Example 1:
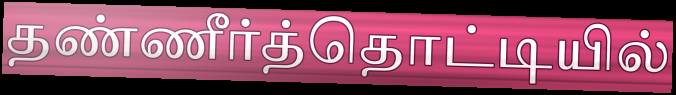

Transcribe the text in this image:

தண்ணீர்த்தொட்டியில்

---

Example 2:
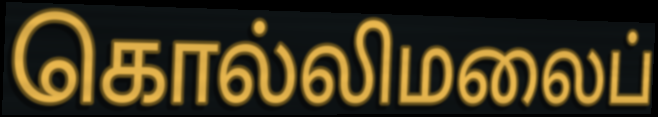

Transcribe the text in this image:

கொல்லிமலைப்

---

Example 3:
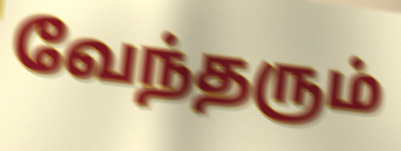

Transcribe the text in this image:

வேந்தரும்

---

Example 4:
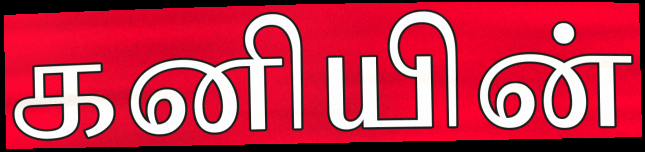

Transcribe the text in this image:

கனியின்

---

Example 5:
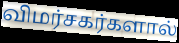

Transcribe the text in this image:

விமர்சகர்களால்